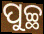
ପୁଚ୍ଛ